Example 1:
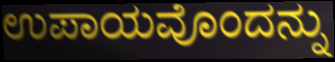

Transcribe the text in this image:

ಉಪಾಯವೊಂದನ್ನು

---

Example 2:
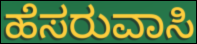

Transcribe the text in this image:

ಹೆಸರುವಾಸಿ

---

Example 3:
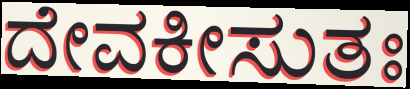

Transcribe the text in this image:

ದೇವಕೀಸುತಃ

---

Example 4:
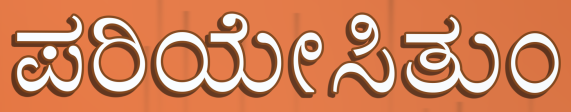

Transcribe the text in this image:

ಪರಿಯೇಸಿತುಂ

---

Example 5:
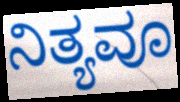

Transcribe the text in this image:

ನಿತ್ಯವೂ